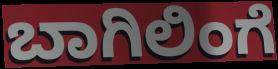
ಬಾಗಿಲಿಂಗೆ